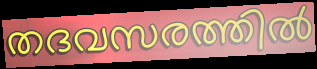
തദവസരത്തിൽ